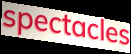
spectacles